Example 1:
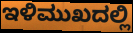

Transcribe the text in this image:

ಇಳಿಮುಖದಲ್ಲಿ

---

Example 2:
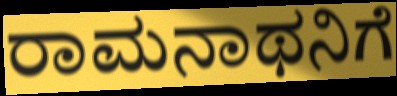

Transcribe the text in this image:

ರಾಮನಾಥನಿಗೆ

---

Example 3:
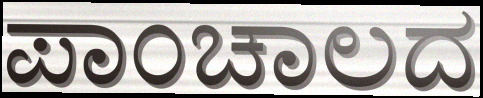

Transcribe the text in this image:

ಪಾಂಚಾಲದ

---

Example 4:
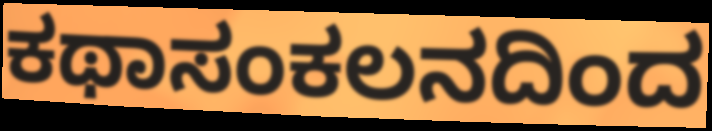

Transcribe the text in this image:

ಕಥಾಸಂಕಲನದಿಂದ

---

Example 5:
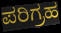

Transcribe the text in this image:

ಪರಿಗ್ರಹ